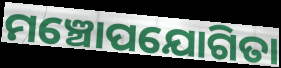
ମଞ୍ଚୋପଯୋଗିତା